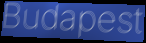
Budapest